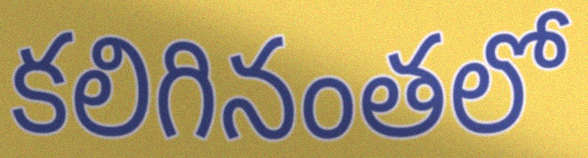
కలిగినంతలో